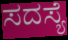
ಸದಸ್ಯೆ